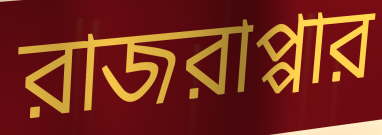
রাজরাপ্পার